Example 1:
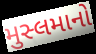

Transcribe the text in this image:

મુસ્લમાનો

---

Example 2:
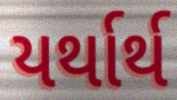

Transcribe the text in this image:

યર્થાર્થ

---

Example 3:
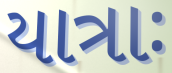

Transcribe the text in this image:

યાત્રાઃ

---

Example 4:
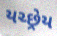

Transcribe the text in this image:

યચ્છ્રેય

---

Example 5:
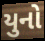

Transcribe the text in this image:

યુનો